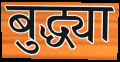
बुद्ध्या